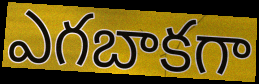
ఎగబాకగా